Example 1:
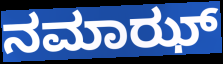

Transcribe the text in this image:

ನಮಾಝ್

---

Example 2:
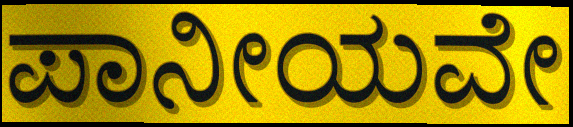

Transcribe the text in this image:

ಪಾನೀಯವೇ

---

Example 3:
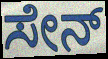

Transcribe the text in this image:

ಸೇನ್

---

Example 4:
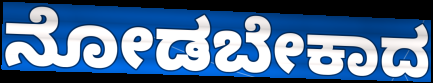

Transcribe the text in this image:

ನೋಡಬೇಕಾದ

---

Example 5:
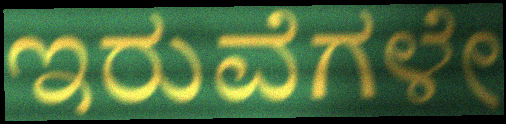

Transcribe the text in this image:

ಇರುವೆಗಳೇ